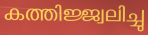
കത്തിജ്ജ്വലിച്ചു